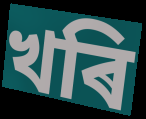
খৰি